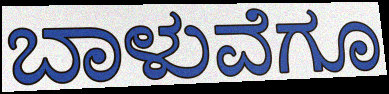
ಬಾಳುವೆಗೂ